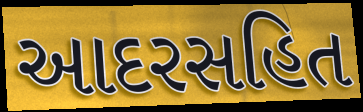
આદરસહિત